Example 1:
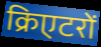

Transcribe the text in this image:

क्रिएटरों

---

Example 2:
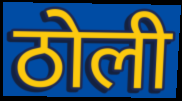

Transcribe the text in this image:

ठोली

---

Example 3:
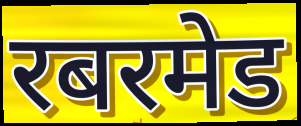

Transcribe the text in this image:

रबरमेड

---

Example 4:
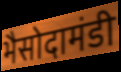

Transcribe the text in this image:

भैसोदामंडी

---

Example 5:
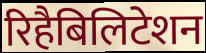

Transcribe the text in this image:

रिहैबिलिटेशन